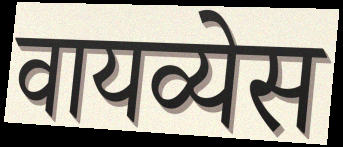
वायव्येस